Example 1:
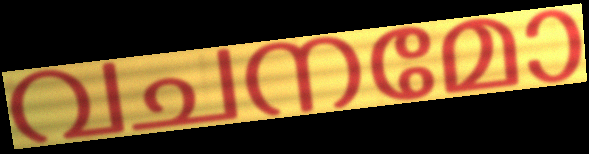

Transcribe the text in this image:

വചനമോ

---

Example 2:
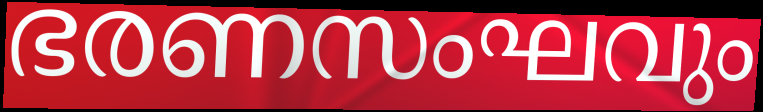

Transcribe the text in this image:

ഭരണസംഘവും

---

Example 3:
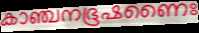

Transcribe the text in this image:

കാഞ്ചനഭൂഷണൈഃ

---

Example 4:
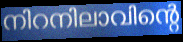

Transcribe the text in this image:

നിറനിലാവിന്റെ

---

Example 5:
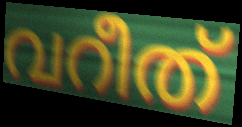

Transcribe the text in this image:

വറീത്